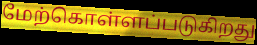
மேற்கொள்ளப்படுகிறது